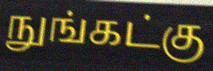
நுங்கட்கு